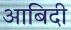
आबिदी